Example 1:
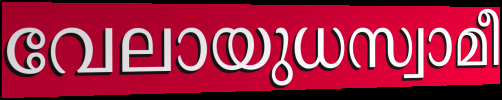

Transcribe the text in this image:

വേലായുധസ്വാമീ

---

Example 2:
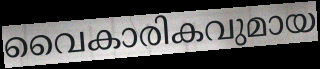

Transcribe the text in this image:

വൈകാരികവുമായ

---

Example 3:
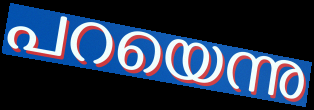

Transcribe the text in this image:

പറയെന്നു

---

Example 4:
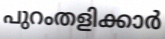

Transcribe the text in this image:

പുറംതളിക്കാർ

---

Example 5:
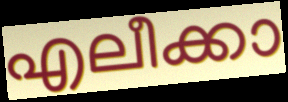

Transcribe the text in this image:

എലീക്കാ